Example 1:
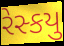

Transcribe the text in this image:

રેસ્કયુ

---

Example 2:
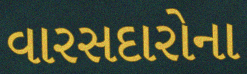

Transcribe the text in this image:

વારસદારોના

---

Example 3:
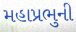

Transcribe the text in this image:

મહાપ્રભુની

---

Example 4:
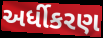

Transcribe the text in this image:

અર્ધીકરણ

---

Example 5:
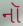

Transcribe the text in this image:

નૉ